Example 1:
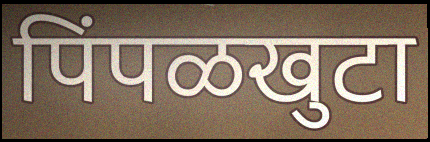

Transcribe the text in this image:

पिंपळखुटा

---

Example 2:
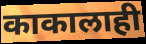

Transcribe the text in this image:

काकालाही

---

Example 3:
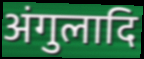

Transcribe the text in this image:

अंगुलादि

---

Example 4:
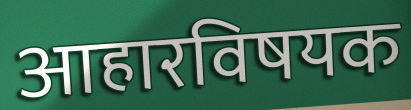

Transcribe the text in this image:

आहारविषयक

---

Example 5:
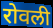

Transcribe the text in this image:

रोवली